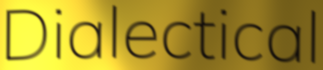
Dialectical